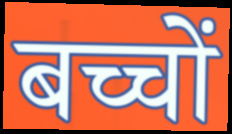
बच्चों